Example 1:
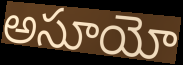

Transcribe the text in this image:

అసూయో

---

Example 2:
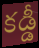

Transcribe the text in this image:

కడ్డీ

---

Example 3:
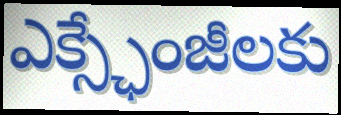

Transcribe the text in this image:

ఎక్స్ఛేంజీలకు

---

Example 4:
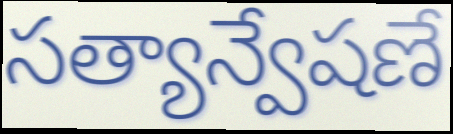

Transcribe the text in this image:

సత్యాన్వేషణే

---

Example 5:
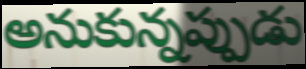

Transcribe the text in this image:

అనుకున్నప్పుడు